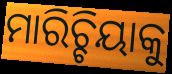
ମାରିଚ୍ଚିୟାକୁ